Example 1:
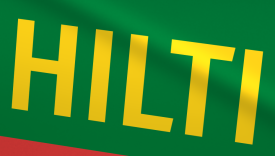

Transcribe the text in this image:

HILTI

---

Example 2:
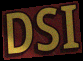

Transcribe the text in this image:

DSI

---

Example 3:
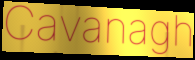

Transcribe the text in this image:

Cavanagh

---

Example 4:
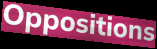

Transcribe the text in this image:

Oppositions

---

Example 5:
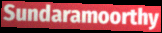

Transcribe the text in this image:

Sundaramoorthy